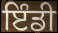
ਇੰਡੀ